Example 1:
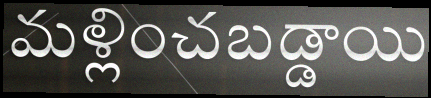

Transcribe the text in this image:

మళ్లించబడ్డాయి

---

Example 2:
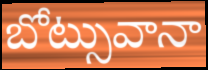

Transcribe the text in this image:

బోట్సువానా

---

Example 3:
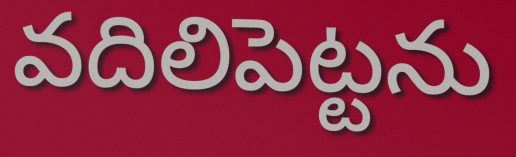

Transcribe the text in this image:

వదిలిపెట్టను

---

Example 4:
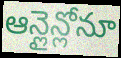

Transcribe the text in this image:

ఆన్లైన్లోనూ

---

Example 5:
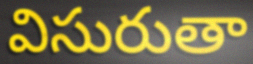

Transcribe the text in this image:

విసురుతా